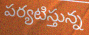
పర్యటిస్తున్న